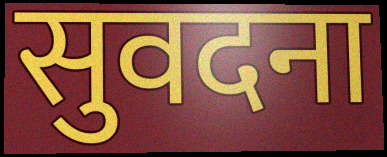
सुवदना